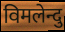
विमलेन्दु